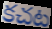
కచట